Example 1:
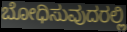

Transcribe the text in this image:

ಬೋಧಿಸುವುದರಲ್ಲಿ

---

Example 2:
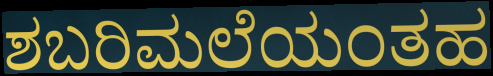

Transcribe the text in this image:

ಶಬರಿಮಲೆಯಂತಹ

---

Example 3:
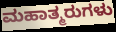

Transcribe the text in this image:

ಮಹಾತ್ಮರುಗಳು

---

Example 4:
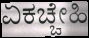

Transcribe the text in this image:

ಏಕಚ್ಚೇಹಿ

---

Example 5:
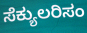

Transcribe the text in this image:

ಸೆಕ್ಯುಲರಿಸಂ